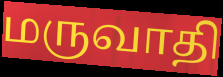
மருவாதி